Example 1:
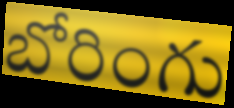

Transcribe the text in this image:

బోరింగు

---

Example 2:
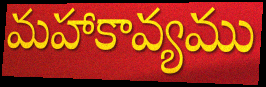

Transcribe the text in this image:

మహాకావ్యము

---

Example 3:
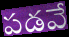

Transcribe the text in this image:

పడవే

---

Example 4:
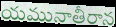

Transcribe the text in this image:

యమునాతీరాన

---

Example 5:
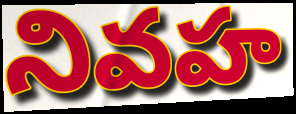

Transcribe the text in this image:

నివహ